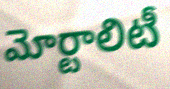
మోర్టాలిటీ